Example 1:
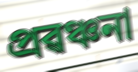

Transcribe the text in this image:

প্ৰৱঞ্চনা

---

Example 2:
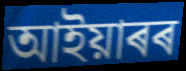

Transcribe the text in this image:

আইয়াৰৰ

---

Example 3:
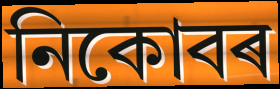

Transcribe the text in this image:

নিকোবৰ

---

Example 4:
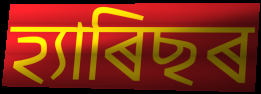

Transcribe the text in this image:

হ্যাৰিছৰ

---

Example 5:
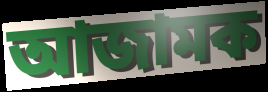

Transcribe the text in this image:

আজামক